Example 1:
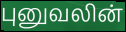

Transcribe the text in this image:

புனுவலின்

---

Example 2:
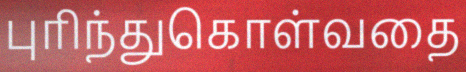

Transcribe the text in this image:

புரிந்துகொள்வதை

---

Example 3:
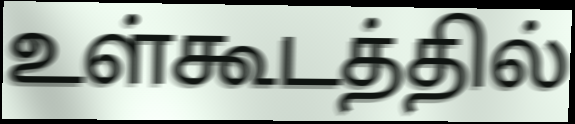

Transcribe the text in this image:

உள்கூடத்தில்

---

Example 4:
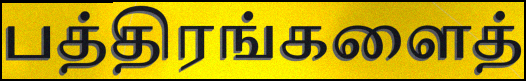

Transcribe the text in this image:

பத்திரங்களைத்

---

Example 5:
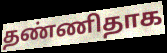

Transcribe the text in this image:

தண்ணிதாக